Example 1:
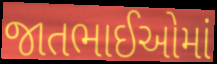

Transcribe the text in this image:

જાતભાઈઓમાં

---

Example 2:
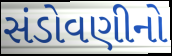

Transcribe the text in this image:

સંડોવણીનો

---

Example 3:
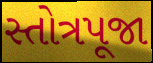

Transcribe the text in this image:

સ્તોત્રપૂજા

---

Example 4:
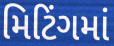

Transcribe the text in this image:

મિટિંગમાં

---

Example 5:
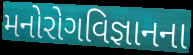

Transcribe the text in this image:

મનોરોગવિજ્ઞાનના